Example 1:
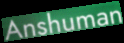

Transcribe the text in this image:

Anshuman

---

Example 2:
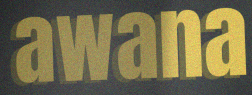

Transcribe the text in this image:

awana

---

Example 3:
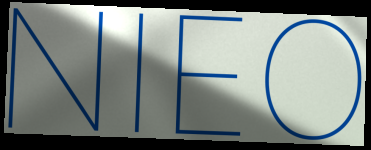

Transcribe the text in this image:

NIEO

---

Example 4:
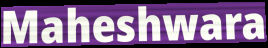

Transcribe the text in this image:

Maheshwara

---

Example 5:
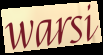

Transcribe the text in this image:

warsi